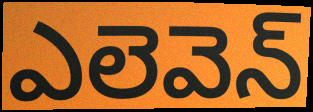
ఎలెవెన్